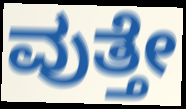
ವುತ್ತೇ